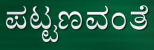
ಪಟ್ಟಣವಂತೆ